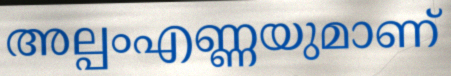
അല്പംഎണ്ണയുമാണ്